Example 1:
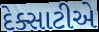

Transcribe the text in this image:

દેક્સાટીએ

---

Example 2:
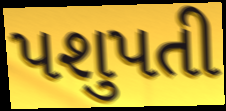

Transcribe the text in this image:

પશુપતી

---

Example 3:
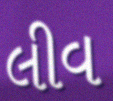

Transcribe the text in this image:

લીવ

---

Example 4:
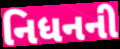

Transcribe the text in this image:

નિધનની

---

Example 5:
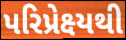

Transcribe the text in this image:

પરિપ્રેક્ષ્યથી